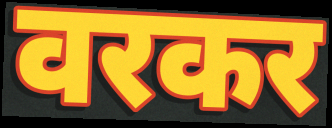
वरकर